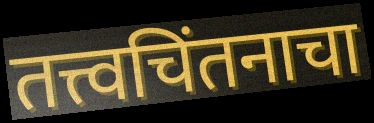
तत्त्वचिंतनाचा